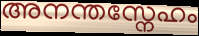
അനന്തസ്നേഹം